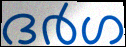
ദർഗ